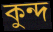
কুন্দ